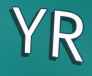
YR